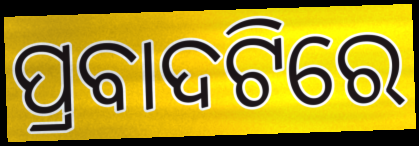
ପ୍ରବାଦଟିରେ